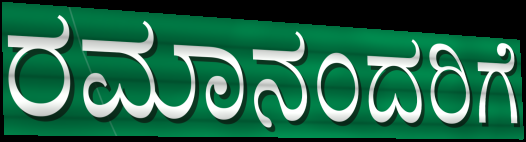
ರಮಾನಂದರಿಗೆ